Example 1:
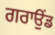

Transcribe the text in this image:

ਗਰਾਉਂਡ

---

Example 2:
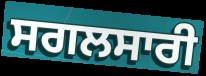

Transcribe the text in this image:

ਸਗਲਸਾਰੀ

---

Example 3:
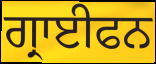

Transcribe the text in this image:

ਗ੍ਰਾਈਫਨ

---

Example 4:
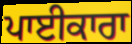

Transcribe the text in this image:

ਪਾਈਕਾਰਾ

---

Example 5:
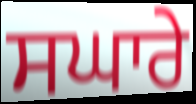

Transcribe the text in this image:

ਸਘਾਰੇ